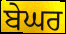
ਬੇਘਰ